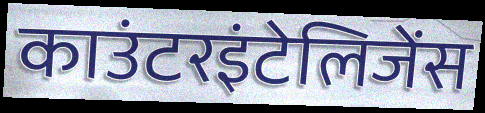
काउंटरइंटेलिजेंस